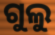
ଗୁଲୁ